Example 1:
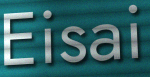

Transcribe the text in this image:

Eisai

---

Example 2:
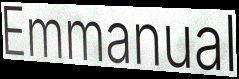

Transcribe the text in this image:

Emmanual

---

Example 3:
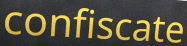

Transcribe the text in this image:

confiscate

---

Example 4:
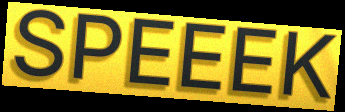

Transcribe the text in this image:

SPEEEK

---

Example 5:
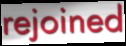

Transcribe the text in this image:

rejoined